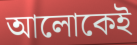
আলোকেই